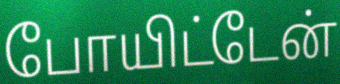
போயிட்டேன்